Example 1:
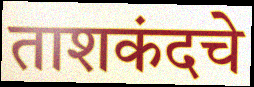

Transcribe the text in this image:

ताशकंदचे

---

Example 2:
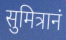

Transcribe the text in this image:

सुमित्रानं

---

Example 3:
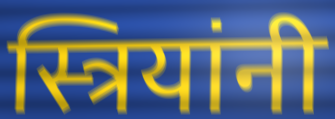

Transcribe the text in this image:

स्त्रियांनी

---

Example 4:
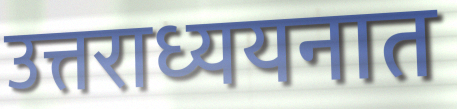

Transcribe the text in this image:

उत्तराध्ययनात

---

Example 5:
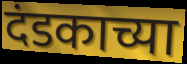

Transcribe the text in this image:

दंडकाच्या